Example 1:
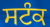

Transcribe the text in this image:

ਸਟੰਕ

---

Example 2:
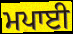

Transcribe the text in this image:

ਮਪਾਈ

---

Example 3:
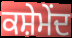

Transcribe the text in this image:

ਕਸ਼ੇਮੇਂਦ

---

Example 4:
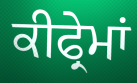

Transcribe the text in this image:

ਕੀਫ੍ਰੇਮਾਂ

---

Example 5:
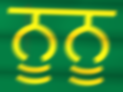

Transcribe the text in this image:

ਨੂਨੂ